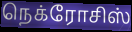
நெக்ரோசிஸ்